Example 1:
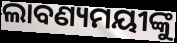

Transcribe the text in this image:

ଲାବଣ୍ୟମୟୀଙ୍କୁ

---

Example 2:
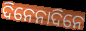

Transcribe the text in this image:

ଦିନେନାଦିନେ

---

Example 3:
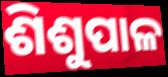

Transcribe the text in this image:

ଶିଶୁପାଳ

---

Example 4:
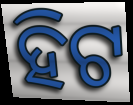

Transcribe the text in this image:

ହିଟ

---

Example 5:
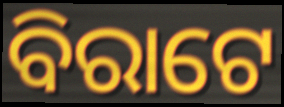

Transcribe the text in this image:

ବିରାଟେ